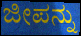
ಜೀಪನ್ನು